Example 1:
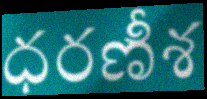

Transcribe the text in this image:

ధరణీశ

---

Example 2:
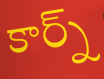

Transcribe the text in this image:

కార్న్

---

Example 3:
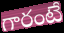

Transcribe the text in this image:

గారంటే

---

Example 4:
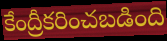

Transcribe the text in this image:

కేంద్రీకరించబడింది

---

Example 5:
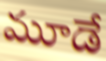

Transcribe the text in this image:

మూడే